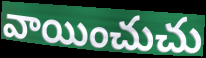
వాయించుచు